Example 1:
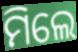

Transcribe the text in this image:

ମିଲେ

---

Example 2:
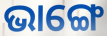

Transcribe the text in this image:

ଭାଙ୍ଗେ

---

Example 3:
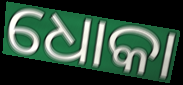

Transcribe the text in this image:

ଧୋକା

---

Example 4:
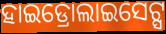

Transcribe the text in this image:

ହାଇଡ୍ରୋଲାଇସେଟ୍ସ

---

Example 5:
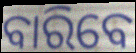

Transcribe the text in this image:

ବାରିବେ